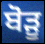
ਬੋੜੂ